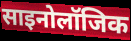
साइनोलॉजिक